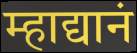
म्हाद्यानं